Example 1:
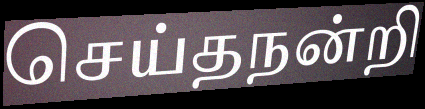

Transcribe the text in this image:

செய்தநன்றி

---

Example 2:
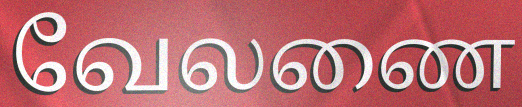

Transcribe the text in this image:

வேலணை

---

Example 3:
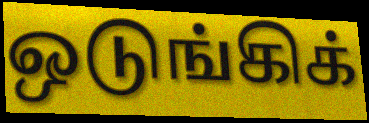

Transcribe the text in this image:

ஒடுங்கிக்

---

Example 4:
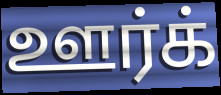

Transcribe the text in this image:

ஊர்க்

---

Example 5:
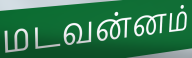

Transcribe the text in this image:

மடவன்னம்